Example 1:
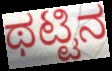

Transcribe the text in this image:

ಥಟ್ಟಿನ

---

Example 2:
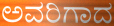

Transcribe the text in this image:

ಅವರಿಗಾದ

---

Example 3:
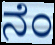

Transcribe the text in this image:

ನೆಂ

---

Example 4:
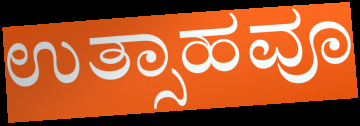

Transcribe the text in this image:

ಉತ್ಸಾಹವೂ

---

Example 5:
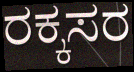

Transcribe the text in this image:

ರಕ್ಕಸರ